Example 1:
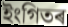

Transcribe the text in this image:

ইংগিতৰ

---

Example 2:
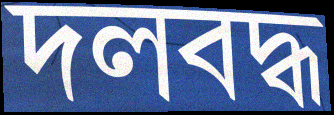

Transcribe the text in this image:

দলবদ্ধ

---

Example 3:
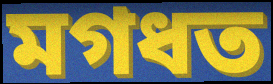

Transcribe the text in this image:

মগধত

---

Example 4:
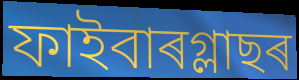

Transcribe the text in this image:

ফাইবাৰগ্লাছৰ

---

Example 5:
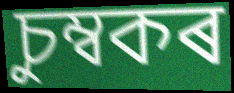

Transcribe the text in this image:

চুম্বকৰ